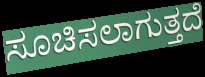
ಸೂಚಿಸಲಾಗುತ್ತದೆ